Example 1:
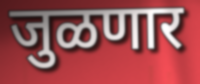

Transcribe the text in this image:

जुळणार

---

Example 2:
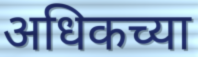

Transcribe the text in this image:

अधिकच्या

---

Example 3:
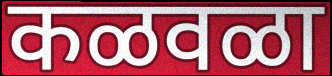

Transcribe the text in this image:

कळवळा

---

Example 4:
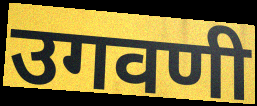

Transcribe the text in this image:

उगवणी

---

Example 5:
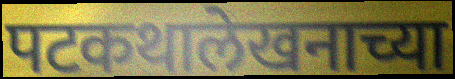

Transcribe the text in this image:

पटकथालेखनाच्या